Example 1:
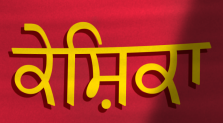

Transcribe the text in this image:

ਕੇਸ਼ਿਕਾ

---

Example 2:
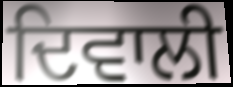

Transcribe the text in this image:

ਦਿਵਾਲੀ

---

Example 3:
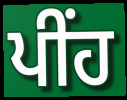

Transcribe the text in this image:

ਪੀਂਹ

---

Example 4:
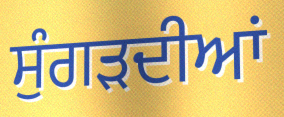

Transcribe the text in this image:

ਸੁੰਗੜਦੀਆਂ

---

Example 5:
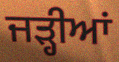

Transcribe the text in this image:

ਜੜ੍ਹੀਆਂ